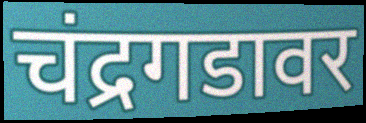
चंद्रगडावर